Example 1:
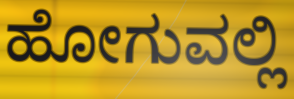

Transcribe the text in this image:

ಹೋಗುವಲ್ಲಿ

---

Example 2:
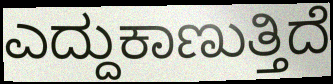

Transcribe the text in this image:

ಎದ್ದುಕಾಣುತ್ತಿದೆ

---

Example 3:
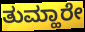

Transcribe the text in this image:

ತುಮ್ಹಾರೇ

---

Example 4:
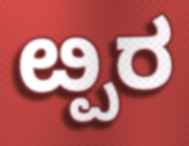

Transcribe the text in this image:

ೞ್ಪರ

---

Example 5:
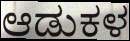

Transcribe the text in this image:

ಆಡುಕಳ